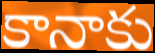
కానాకు